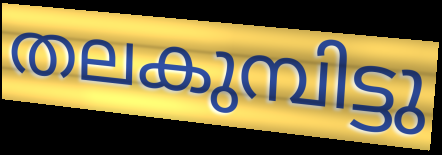
തലകുമ്പിട്ടു